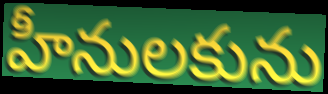
హీనులకును